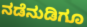
ನಡೆನುಡಿಗೂ